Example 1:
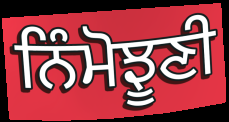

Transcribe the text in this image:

ਨਿੰਮੋਝੂਣੀ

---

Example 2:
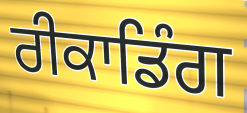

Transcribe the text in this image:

ਰੀਕਾਡਿੰਗ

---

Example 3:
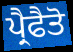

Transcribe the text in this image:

ਪ੍ਰੈਫੈਤੋ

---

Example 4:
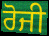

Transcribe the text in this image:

ਰੋਜੀ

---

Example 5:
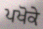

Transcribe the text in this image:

ਪਖੋਕੇ